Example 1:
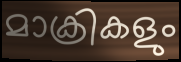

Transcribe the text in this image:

മാക്രികളും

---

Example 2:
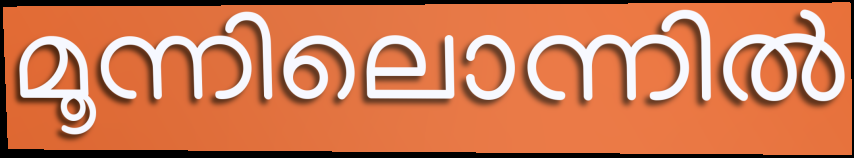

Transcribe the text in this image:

മൂന്നിലൊന്നിൽ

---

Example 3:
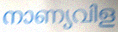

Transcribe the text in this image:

നാണ്യവിള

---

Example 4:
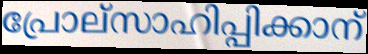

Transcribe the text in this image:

പ്രോല്സാഹിപ്പിക്കാന്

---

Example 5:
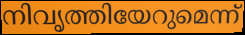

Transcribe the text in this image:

നിവൃത്തിയേറുമെന്ന്